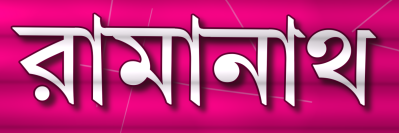
রামানাথ